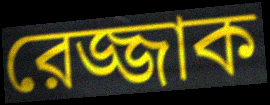
রেজ্জাক